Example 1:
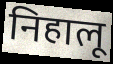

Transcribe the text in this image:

निहालू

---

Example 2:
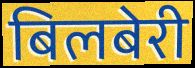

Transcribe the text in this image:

बिलबेरी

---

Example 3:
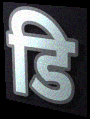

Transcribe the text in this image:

डि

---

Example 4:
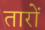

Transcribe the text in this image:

तारों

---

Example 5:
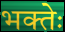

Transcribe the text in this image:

भक्तेः